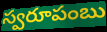
స్వరూపంబు